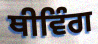
ਥੀਵਿੰਗ